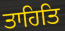
ਤਾਹਿਤਿ